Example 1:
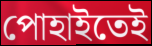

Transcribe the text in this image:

পোহাইতেই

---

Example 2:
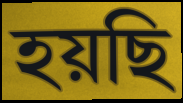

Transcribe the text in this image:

হয়ছি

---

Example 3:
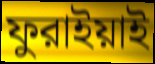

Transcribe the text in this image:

ফুরাইয়াই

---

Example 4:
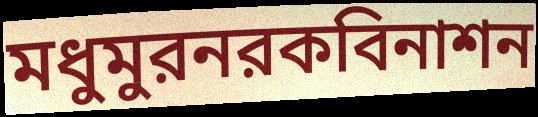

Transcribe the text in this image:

মধুমুরনরকবিনাশন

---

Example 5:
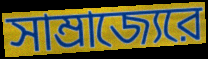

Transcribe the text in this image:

সাম্রাজ্যেরে